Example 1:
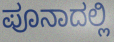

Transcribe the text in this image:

ಪೂನಾದಲ್ಲಿ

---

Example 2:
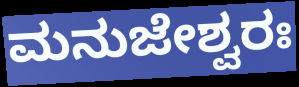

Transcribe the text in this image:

ಮನುಜೇಶ್ವರಃ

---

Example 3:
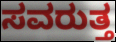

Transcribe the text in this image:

ಸವರುತ್ತ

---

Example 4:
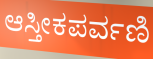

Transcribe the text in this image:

ಆಸ್ತೀಕಪರ್ವಣಿ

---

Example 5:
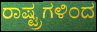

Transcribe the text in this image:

ರಾಷ್ಟ್ರಗಳಿಂದ